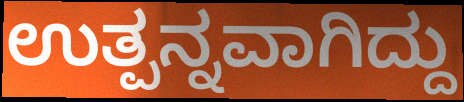
ಉತ್ಪನ್ನವಾಗಿದ್ದು